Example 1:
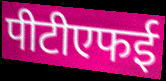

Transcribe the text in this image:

पीटीएफई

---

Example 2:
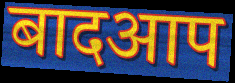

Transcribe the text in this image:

बादआप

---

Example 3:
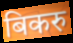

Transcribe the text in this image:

बिकरु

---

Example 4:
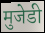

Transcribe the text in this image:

मुजेडी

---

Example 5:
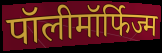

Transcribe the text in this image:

पॉलीमॉर्फिज्म